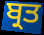
ਬ੍ਰਤ